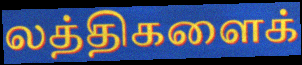
லத்திகளைக்